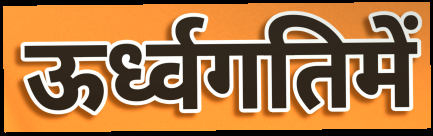
ऊर्ध्वगतिमें